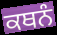
ਕਥਨੰ